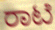
ರಾಟೆ